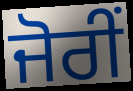
ਜੋਰੀਂ